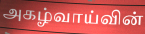
அகழ்வாய்வின்